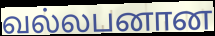
வல்லபனான